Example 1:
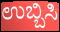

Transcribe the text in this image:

ಉಬ್ಬಿಸಿ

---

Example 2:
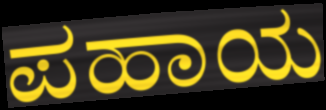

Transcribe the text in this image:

ಪಹಾಯ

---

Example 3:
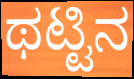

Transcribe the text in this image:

ಥಟ್ಟಿನ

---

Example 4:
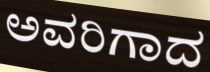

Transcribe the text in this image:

ಅವರಿಗಾದ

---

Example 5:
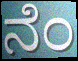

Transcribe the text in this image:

ನೆಂ